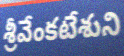
శ్రీవేంకటేశుని